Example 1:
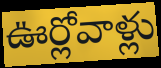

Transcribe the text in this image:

ఊర్లోవాళ్లు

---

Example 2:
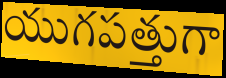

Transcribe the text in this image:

యుగపత్తుగా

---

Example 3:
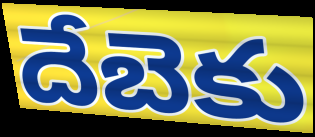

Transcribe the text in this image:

దేబెకు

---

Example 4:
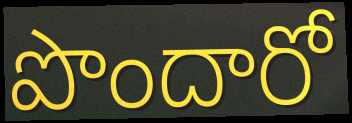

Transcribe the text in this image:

పొందారో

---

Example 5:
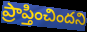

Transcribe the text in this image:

ప్రాప్తించిందని